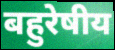
बहुरेषीय